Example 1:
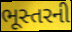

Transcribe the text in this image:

ભૂસ્તરની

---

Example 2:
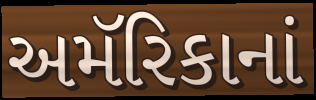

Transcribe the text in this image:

અમૅરિકાનાં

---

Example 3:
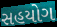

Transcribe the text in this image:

સહયોગ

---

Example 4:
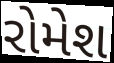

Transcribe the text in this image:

રોમેશ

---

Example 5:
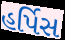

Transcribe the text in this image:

હર્પિસ